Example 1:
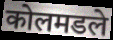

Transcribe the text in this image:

कोलमडले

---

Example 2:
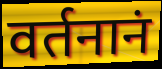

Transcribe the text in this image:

वर्तनानं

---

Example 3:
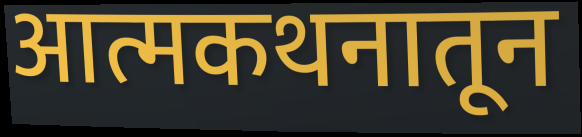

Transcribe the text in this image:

आत्मकथनातून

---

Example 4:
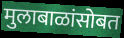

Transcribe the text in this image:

मुलाबाळांसोबत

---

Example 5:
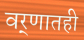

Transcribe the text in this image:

वर्णातही